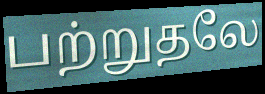
பற்றுதலே